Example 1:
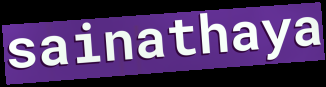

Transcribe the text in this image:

sainathaya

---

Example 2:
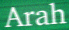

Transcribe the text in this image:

Arah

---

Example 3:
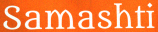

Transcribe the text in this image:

Samashti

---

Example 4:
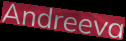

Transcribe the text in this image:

Andreeva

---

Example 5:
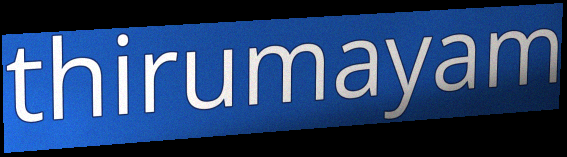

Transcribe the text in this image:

thirumayam